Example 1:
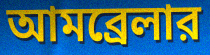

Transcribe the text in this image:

আমব্রেলার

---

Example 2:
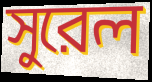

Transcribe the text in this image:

সুরেল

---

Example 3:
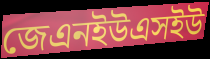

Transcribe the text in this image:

জেএনইউএসইউ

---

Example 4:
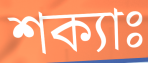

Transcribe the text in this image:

শক্যাঃ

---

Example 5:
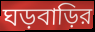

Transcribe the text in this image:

ঘড়বাড়ির